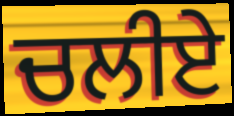
ਚਲੀਏ